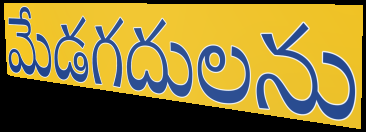
మేడగదులను